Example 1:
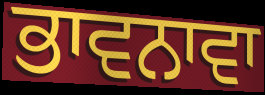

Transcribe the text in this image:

ਭਾਵਨਾਵਾ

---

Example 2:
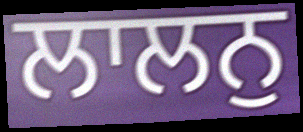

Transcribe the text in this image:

ਲਾਲਨੁ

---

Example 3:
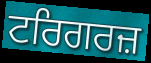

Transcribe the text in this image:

ਟਰਿਗਰਜ਼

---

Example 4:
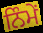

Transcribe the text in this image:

ਨਿੰਮੇਂ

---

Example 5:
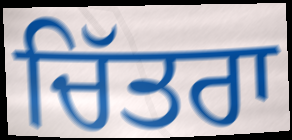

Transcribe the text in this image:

ਚਿੱਤਰਾ